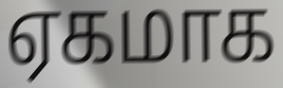
ஏகமாக